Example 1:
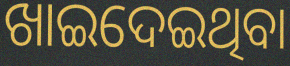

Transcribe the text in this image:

ଖାଇଦେଇଥିବା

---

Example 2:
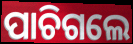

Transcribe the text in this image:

ପାଚିଗଲେ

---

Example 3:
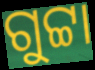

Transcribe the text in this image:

ଗୁଟ୍ଟା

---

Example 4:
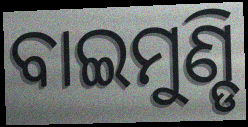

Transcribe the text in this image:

ବାଇମୁଣ୍ଡି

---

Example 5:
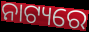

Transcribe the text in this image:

ନାଟ୍ୟରେ